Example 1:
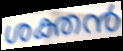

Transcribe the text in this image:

ശക്തൻ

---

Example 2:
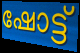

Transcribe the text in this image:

ഷോട്ട്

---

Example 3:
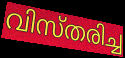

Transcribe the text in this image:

വിസ്തരിച്ച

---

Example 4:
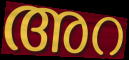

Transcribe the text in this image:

അറ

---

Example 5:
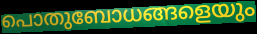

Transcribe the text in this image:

പൊതുബോധങ്ങളെയും